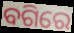
ବଗିରେ